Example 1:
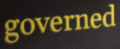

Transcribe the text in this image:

governed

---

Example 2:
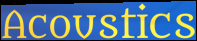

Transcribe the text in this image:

Acoustics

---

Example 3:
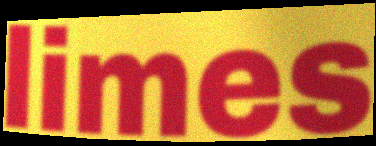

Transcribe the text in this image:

limes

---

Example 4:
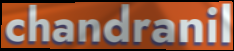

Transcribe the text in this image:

chandranil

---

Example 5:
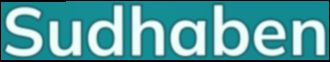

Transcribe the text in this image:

Sudhaben